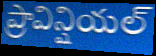
ప్రావిన్షియల్